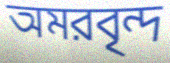
অমরবৃন্দ